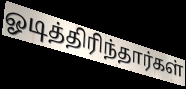
ஓடித்திரிந்தார்கள்